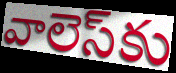
వాలెస్‌కు